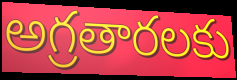
అగ్రతారలకు